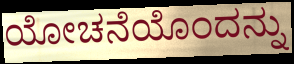
ಯೋಚನೆಯೊಂದನ್ನು